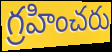
గ్రహించరు